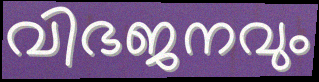
വിഭജനവും